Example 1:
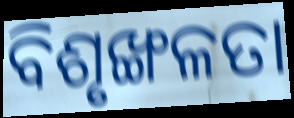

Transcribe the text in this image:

ବିଶୃଙ୍ଖଳତା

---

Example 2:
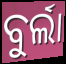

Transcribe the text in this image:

ବୁର୍ଲା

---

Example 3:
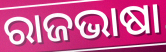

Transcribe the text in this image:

ରାଜଭାଷା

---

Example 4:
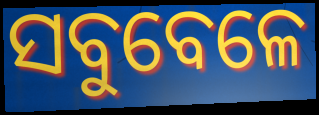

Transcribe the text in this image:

ସବୁବେଳେ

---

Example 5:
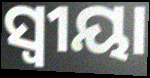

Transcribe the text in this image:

ସ୍ଵୀୟା